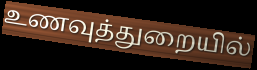
உணவுத்துறையில்